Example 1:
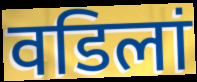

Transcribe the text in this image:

वडिलां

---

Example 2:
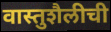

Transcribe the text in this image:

वास्तुशैलीची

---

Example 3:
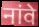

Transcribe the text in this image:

नांवे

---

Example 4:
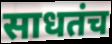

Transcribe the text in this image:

साधतंच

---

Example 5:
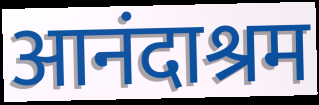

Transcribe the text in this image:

आनंदाश्रम